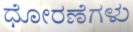
ಧೋರಣೆಗಳು